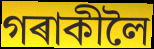
গৰাকীলৈ